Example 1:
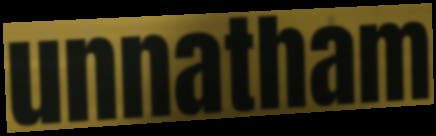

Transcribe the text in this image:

unnatham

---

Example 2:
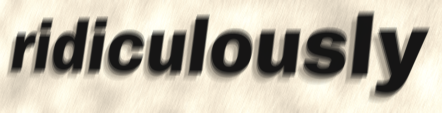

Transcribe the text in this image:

ridiculously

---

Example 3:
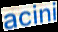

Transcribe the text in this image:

acini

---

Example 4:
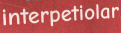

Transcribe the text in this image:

interpetiolar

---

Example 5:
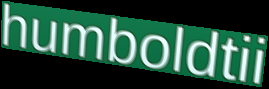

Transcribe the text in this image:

humboldtii